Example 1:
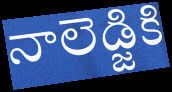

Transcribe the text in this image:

నాలెడ్జికి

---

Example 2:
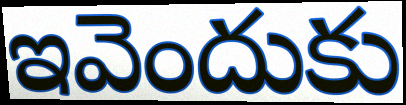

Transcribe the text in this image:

ఇవెందుకు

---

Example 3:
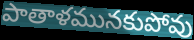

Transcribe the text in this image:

పాతాళమునకుపోవు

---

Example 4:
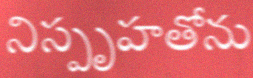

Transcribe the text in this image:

నిస్పృహతోను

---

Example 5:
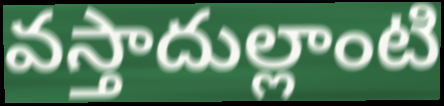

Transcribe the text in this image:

వస్తాదుల్లాంటి